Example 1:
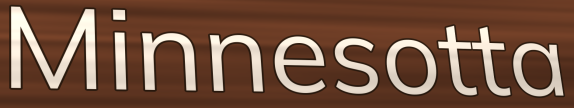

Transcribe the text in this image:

Minnesotta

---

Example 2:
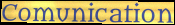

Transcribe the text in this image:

Comunication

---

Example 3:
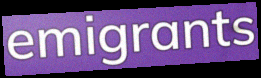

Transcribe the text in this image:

emigrants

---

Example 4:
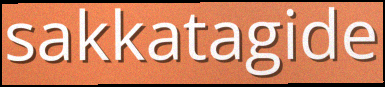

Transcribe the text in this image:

sakkatagide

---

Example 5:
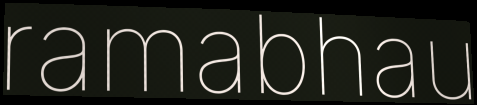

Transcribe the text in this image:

ramabhau